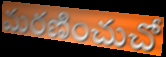
మరణించుచో